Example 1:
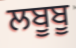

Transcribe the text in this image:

ਲਬੂਬੂ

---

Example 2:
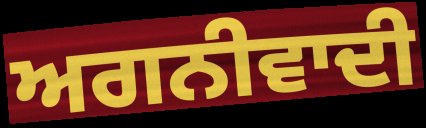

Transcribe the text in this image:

ਅਗਨੀਵਾਦੀ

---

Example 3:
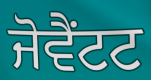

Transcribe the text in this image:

ਜੋਵੈਂਟਟ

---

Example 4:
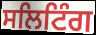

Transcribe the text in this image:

ਸਲਿਟਿੰਗ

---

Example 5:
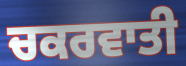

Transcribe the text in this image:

ਚਕਰਵਾਤੀ